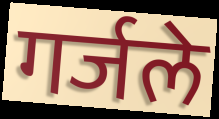
गर्जले